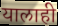
यालाही